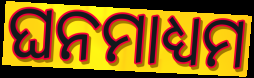
ଘନମାଧ୍ୟମ